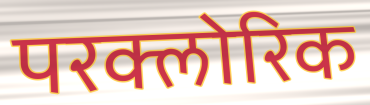
परक्लोरिक